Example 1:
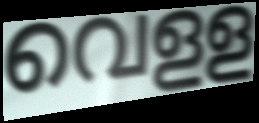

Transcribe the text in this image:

വെളള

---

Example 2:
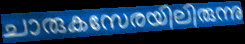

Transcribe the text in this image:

ചാരുകസേരയിലിരുന്നു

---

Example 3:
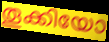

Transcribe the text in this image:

തൂക്കിയോ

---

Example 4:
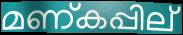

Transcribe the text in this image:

മണ്കപ്പില്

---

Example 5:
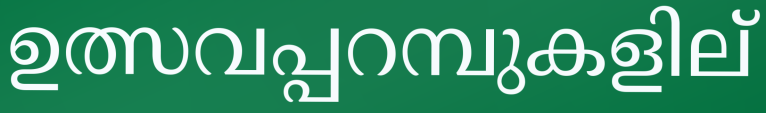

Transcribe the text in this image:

ഉത്സവപ്പറമ്പുകളില്